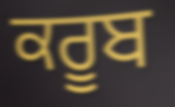
ਕਰੂਬ